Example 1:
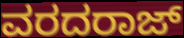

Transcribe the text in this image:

ವರದರಾಜ್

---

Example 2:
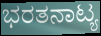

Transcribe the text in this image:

ಭರತನಾಟ್ಯ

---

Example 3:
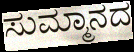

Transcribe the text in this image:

ಸುಮ್ಮಾನದ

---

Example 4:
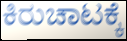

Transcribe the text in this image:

ಕಿರುಚಾಟಕ್ಕೆ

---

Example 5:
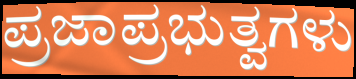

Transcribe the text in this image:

ಪ್ರಜಾಪ್ರಭುತ್ವಗಳು